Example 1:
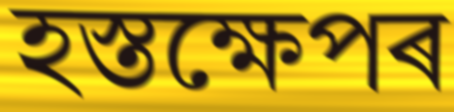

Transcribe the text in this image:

হস্তক্ষেপৰ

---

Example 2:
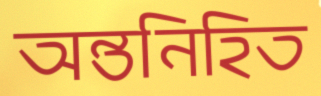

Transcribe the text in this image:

অন্তনিহিত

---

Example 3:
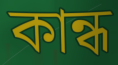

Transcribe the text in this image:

কান্ধ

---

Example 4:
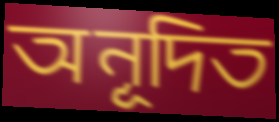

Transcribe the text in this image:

অনূদিত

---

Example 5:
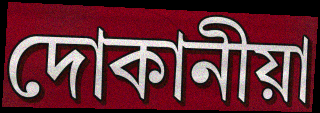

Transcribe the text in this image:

দোকানীয়া